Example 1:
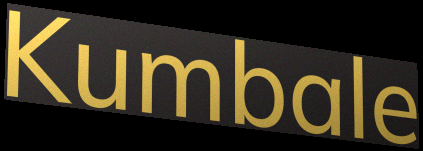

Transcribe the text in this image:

Kumbale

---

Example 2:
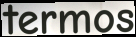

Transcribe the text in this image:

termos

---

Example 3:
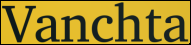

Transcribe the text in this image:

Vanchta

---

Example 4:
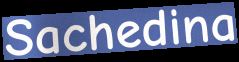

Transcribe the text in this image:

Sachedina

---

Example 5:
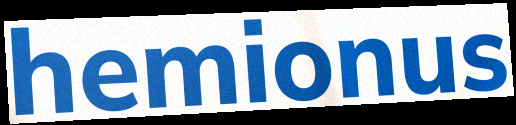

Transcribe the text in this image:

hemionus